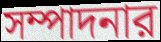
সম্পাদনার